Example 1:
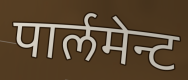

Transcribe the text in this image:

पार्लमेन्ट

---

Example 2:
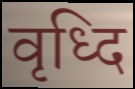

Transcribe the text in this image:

वृध्दि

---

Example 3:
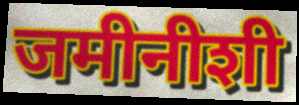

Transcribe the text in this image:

जमीनीशी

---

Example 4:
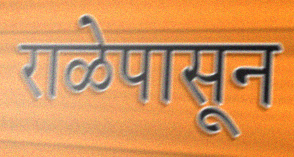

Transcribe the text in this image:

राळेपासून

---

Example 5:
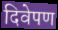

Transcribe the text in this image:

दिवेपण